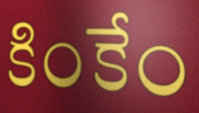
కింకేం